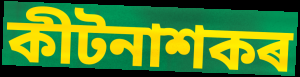
কীটনাশকৰ